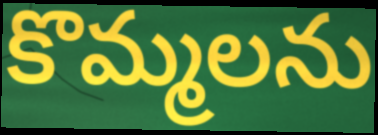
కొమ్మలను